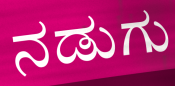
ನಡುಗು